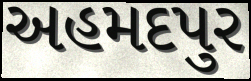
અહમદપુર